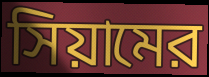
সিয়ামের